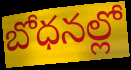
బోధనల్లో